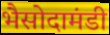
भैसोदामंडी